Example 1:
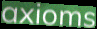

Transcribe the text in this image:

axioms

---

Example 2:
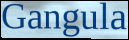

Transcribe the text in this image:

Gangula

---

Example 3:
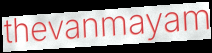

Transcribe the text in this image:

thevanmayam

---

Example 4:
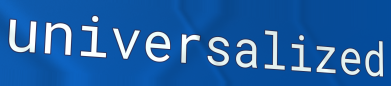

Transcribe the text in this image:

universalized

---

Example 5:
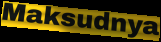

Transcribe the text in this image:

Maksudnya